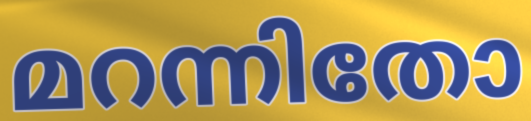
മറന്നിതോ